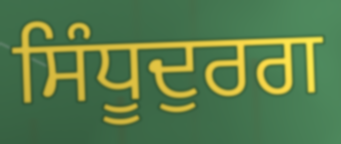
ਸਿੰਧੂਦੁਰਗ